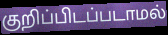
குறிப்பிடப்படாமல்